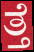
ತ್ತೆ